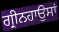
ਗ੍ਰੀਨਹਾਉਸਾਂ